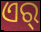
ଏର୍